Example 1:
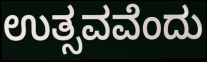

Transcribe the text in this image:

ಉತ್ಸವವೆಂದು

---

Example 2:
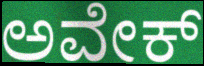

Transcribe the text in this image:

ಅವೇಕ್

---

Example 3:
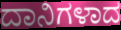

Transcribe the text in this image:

ದಾನಿಗಳಾದ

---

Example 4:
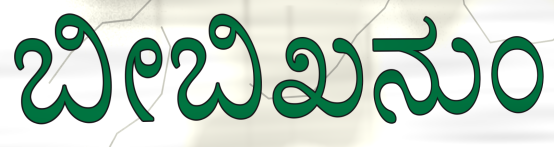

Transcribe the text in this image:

ಬೀಬಿಖನುಂ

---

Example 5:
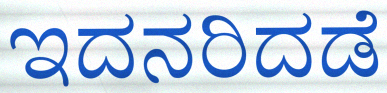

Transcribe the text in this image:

ಇದನರಿದಡೆ